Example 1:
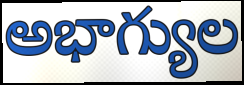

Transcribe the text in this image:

అభాగ్యుల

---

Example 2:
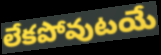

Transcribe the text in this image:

లేకపోవుటయే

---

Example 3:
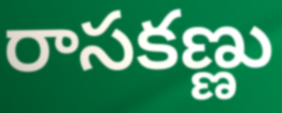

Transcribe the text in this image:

రాసకణ్ణు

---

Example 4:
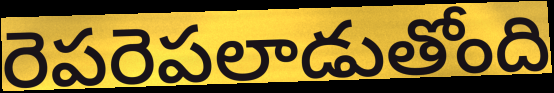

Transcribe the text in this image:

రెపరెపలాడుతోంది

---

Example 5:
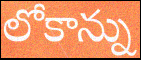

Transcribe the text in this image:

లోకాన్ను